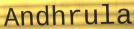
Andhrula